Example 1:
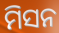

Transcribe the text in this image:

ମିସନ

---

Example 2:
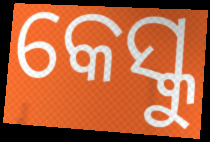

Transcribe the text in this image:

କେସ୍କୁ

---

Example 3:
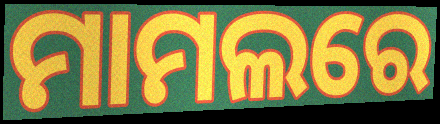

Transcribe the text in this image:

ମାମଲରେ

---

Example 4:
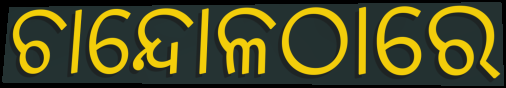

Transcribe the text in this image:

ଚାନ୍ଦୋଳଠାରେ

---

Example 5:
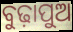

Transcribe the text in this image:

ବୁଢ଼ାପୁଅ